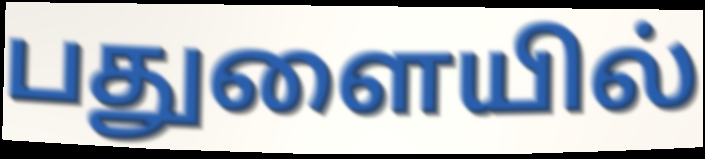
பதுளையில்